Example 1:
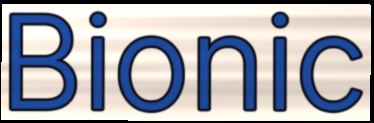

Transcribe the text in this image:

Bionic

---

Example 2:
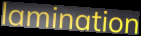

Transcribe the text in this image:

lamination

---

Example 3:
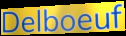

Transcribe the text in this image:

Delboeuf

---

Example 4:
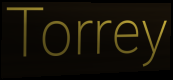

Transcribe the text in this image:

Torrey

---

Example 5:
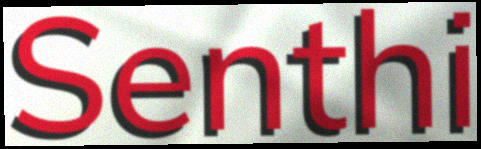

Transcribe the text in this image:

Senthi